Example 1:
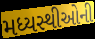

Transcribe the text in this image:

મધ્યસ્થીઓની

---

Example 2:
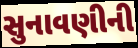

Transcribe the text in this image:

સુનાવણીની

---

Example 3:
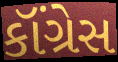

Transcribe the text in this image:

કૉંગ્રેસ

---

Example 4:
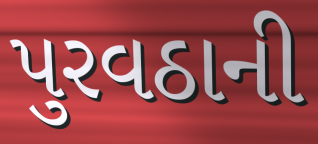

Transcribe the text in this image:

પુરવઠાની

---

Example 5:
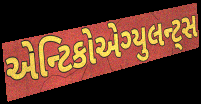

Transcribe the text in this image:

એન્ટિકોએગ્યુલન્ટ્સ